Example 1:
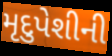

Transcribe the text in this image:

મૃદુપેશીની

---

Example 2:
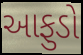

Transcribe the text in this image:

આફુડો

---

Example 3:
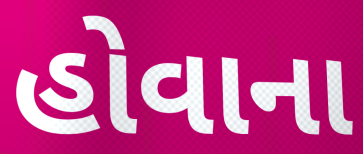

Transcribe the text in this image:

હોવાના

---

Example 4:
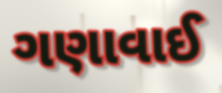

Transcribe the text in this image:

ગણાવાઈ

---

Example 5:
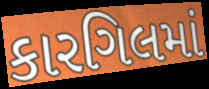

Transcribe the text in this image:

કારગિલમાં